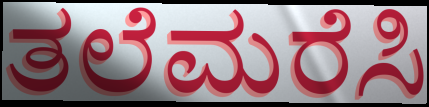
ತಲೆಮರೆಸಿ